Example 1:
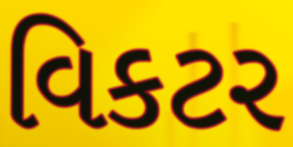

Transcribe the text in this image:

વિકટર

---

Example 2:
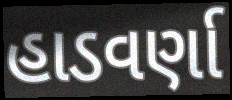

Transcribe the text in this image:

હાડવર્ણા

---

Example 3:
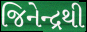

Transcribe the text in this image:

જિનેન્દ્રથી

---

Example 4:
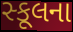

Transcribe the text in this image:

સ્કૂલના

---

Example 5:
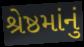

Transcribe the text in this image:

શ્રેષ્ઠમાંનું